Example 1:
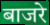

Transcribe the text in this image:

बाजरे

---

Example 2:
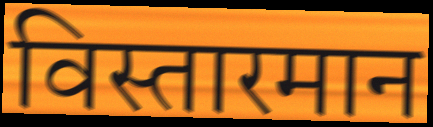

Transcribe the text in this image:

विस्तारमान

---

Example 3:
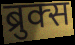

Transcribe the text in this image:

ब्रुक्‍स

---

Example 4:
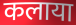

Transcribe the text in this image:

कलाया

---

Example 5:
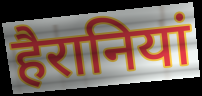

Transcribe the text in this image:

हैरानियां